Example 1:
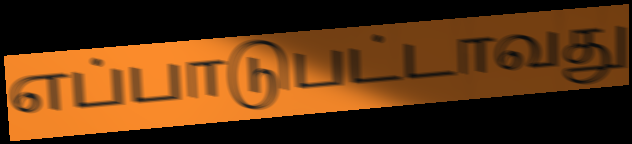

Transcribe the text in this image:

எப்பாடுபட்டாவது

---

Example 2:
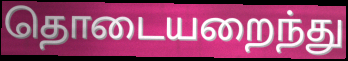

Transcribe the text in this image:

தொடையறைந்து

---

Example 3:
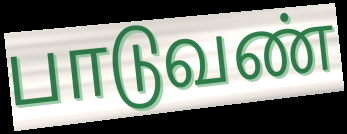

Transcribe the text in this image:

பாடுவண்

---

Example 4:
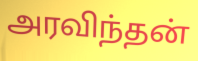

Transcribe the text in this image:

அரவிந்தன்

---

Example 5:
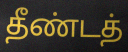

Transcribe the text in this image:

தீண்டத்